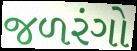
જળરંગો